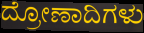
ದ್ರೋಣಾದಿಗಳು